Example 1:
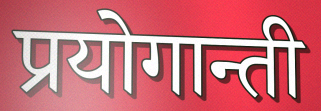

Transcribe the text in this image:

प्रयोगान्ती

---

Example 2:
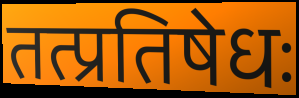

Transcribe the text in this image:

तत्प्रतिषेधः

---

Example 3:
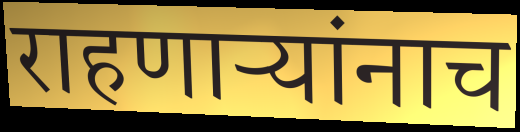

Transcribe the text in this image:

राहणाऱ्यांनाच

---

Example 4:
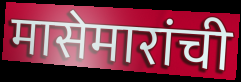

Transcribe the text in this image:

मासेमारांची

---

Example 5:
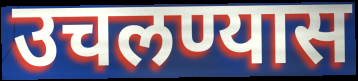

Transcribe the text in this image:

उचलण्यास